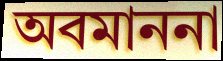
অবমাননা